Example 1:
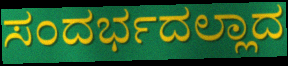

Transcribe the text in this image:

ಸಂದರ್ಭದಲ್ಲಾದ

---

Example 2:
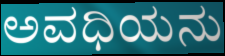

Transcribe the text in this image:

ಅವಧಿಯನು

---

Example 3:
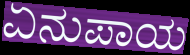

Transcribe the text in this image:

ಏನುಪಾಯ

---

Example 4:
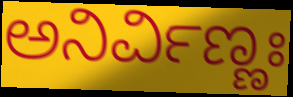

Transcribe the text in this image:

ಅನಿರ್ವಿಣ್ಣಃ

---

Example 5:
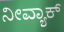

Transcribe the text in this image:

ನೀವ್ಯಾಕ್